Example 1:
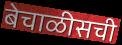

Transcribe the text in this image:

बेचाळीसची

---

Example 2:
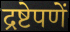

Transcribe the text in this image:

द्रष्टेपणें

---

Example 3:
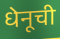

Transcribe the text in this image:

धेनूची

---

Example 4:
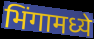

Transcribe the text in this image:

भिंगामध्ये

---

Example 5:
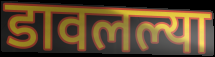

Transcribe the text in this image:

डावलल्या